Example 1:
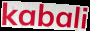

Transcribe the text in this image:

kabali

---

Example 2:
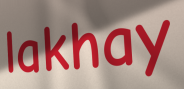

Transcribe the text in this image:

lakhay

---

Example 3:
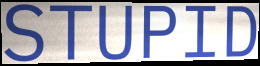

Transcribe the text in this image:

STUPID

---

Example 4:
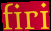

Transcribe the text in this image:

firi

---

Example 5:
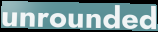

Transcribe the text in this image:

unrounded